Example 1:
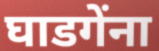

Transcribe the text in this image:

घाडगेंना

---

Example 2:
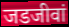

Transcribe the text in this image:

जडजीवां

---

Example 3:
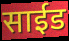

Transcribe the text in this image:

साईड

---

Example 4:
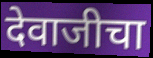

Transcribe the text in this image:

देवाजीचा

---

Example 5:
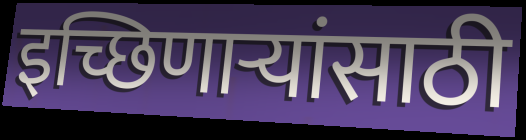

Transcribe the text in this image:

इच्छिणाऱ्यांसाठी